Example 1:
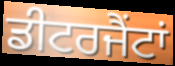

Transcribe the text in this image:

ਡੀਟਰਜੈਂਟਾਂ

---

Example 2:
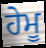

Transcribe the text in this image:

ਹੇਮੂ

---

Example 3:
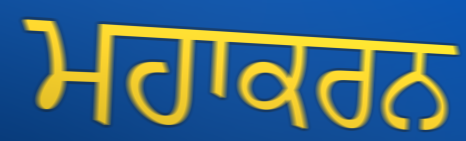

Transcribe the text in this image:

ਮਹਾਕਰਨ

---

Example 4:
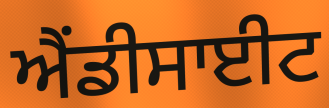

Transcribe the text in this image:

ਐਂਡੀਸਾਈਟ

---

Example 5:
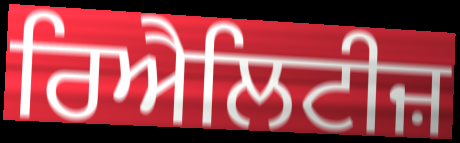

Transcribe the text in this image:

ਰਿਐਲਿਟੀਜ਼